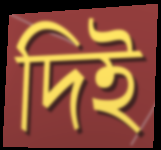
দিই